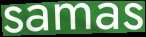
samas